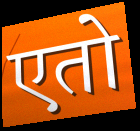
एतो